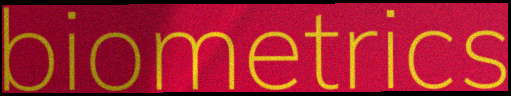
biometrics